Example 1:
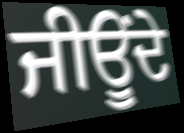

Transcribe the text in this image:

ਜੀਊਂਦੇ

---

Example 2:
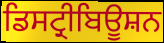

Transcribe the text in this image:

ਡਿਸਟ੍ਰੀਬਿਊਸ਼ਨ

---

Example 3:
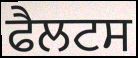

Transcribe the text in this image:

ਫੈਲਟਸ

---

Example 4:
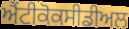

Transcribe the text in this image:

ਐਂਟੀਕੋਕਸੀਡੀਅਲ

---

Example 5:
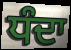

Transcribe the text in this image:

ਧੰਦਾ